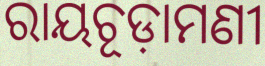
ରାୟଚୂଡ଼ାମଣୀ